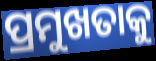
ପ୍ରମୁଖତାକୁ